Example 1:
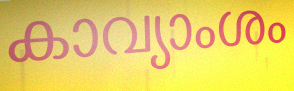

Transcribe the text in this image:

കാവ്യാംശം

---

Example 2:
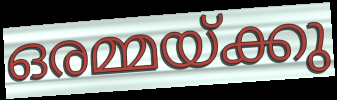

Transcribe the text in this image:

ഒരമ്മയ്ക്കു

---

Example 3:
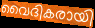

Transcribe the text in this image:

വൈദികരായി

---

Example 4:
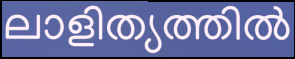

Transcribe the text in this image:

ലാളിത്യത്തിൽ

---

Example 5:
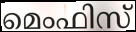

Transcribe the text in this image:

മെംഫിസ്